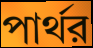
পার্থর